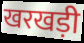
खरखड़ी